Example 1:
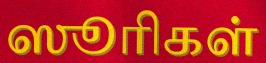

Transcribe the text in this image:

ஸூரிகள்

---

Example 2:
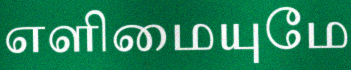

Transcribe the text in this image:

எளிமையுமே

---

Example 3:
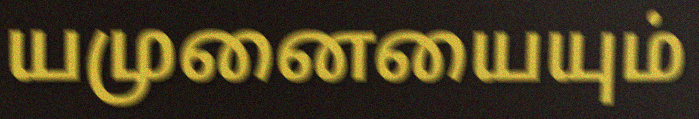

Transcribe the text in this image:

யமுனையையும்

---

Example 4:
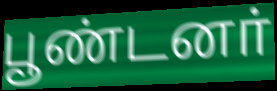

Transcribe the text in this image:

பூண்டனர்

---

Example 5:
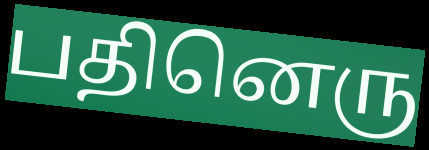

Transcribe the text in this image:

பதினெரு